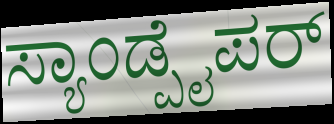
ಸ್ಯಾಂಡ್ಪೈಪರ್